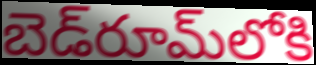
బెడ్‌రూమ్‌లోకి